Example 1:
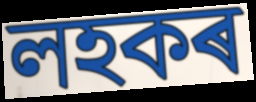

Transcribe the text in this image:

লহকৰ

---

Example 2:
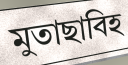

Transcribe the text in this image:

মুতাছাবিহ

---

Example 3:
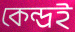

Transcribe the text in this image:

কেন্দ্ৰই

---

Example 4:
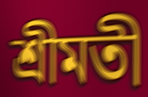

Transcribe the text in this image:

শ্ৰীমতী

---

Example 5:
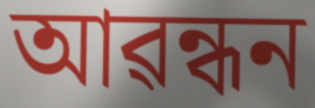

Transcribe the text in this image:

আৱন্ধন